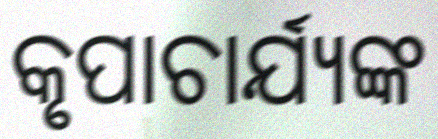
କୃପାଚାର୍ଯ୍ୟଙ୍କ